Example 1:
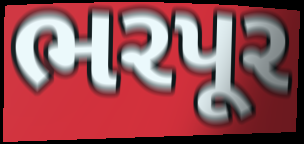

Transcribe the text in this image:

ભરપૂર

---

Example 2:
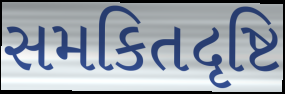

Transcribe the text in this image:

સમકિતદૃષ્ટિ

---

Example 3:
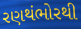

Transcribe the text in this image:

રણથંભોરથી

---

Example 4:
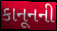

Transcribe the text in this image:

કાનૂનની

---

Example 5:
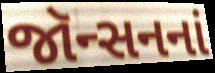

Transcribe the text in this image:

જૉન્સનનાં